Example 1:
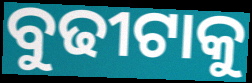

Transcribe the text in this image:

ବୁଢୀଟାକୁ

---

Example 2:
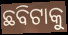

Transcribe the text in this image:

ଛବିଟାକୁ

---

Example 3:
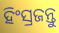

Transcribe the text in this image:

ହିଂସ୍ରଜନ୍ତୁ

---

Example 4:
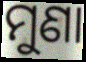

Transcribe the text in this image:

ମୁଣା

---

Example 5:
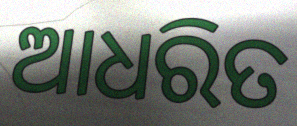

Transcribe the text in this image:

ଆଧରିତ